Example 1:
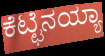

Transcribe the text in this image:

ಕೆಟ್ಟೆನಯ್ಯಾ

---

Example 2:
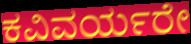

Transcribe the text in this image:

ಕವಿವರ್ಯರೇ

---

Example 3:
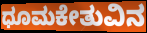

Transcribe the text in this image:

ಧೂಮಕೇತುವಿನ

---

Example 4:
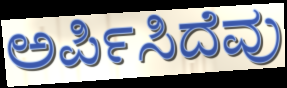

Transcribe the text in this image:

ಅರ್ಪಿಸಿದೆವು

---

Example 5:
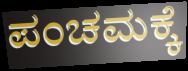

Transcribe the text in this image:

ಪಂಚಮಕ್ಕೆ